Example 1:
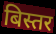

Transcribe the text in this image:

बिस्तर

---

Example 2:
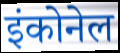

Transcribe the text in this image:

इंकोनेल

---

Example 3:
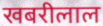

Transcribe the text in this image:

खबरीलाल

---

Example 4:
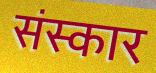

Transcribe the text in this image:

संस्कार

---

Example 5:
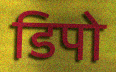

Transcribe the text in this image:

डिपो